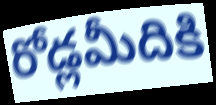
రోడ్లమీదికి